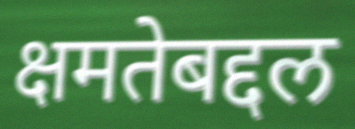
क्षमतेबद्दल